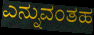
ಎನ್ನುವಂತಹ